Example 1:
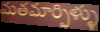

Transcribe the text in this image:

మతమార్పిళ్ళు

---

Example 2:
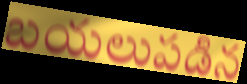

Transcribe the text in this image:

బయలుపడిన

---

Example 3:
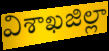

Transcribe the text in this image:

విశాఖజిల్లా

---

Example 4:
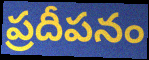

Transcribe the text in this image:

ప్రదీపనం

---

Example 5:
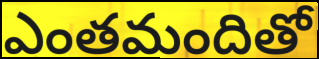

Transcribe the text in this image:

ఎంతమందితో